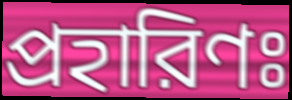
প্রহারিণঃ